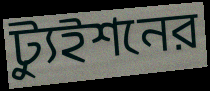
ট্যুইশনের